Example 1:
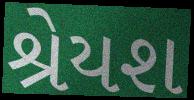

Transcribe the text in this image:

શ્રેયશ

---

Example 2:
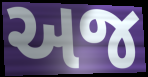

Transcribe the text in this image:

અજ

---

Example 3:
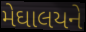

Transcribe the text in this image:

મેઘાલયને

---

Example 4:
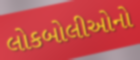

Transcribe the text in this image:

લોકબોલીઓનો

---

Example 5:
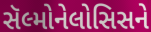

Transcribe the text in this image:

સૅલ્મોનેલોસિસને